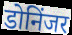
डोनिंजर